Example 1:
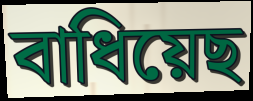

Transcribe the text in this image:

বাধিয়েছ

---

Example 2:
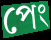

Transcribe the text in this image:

পেং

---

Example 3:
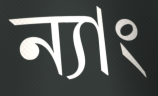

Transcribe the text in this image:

ন্যাং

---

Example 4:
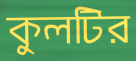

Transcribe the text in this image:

কুলটির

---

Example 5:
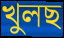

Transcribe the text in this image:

খুলছ